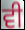
ਵੀ